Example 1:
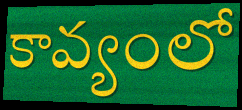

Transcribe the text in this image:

కావ్యంలో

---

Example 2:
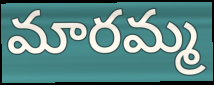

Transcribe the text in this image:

మారమ్మ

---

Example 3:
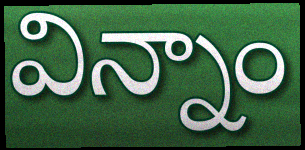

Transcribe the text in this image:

విన్నాం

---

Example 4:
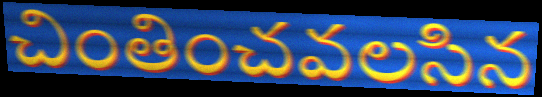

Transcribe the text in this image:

చింతించవలసిన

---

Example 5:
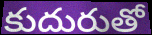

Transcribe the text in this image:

కుదురుతో